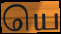
யெ